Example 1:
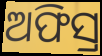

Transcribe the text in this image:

ଅଫିସ୍ର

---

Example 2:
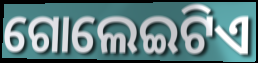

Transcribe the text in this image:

ଗୋଲେଇଟିଏ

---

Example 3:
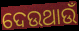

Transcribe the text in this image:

ଦେଉଥାଉଁ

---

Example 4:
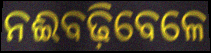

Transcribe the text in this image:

ନଈବଢ଼ିବେଳେ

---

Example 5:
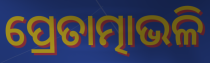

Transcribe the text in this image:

ପ୍ରେତାତ୍ମାଭଳି